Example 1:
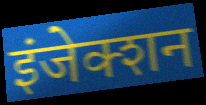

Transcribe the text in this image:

इंजेक्शन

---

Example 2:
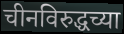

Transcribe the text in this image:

चीनविरुद्धच्या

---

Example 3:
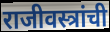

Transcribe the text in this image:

राजीवस्त्रांची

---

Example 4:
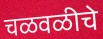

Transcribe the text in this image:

चळवळीचे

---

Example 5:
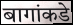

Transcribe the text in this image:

बागांकडे